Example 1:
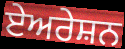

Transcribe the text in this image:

ਏਅਰੇਸ਼ਨ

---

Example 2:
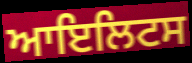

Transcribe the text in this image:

ਆਇਲਿਟਸ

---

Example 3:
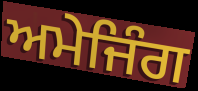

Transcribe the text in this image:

ਅਮੇਜਿੰਗ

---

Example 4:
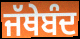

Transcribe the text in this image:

ਜੱਥੇਬੰਦ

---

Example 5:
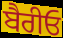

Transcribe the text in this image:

ਬੈਰੀਓ